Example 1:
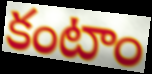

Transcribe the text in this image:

కంటాం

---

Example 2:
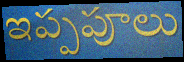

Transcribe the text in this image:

ఇప్పపూలు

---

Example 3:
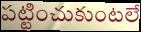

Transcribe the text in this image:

పట్టించుకుంటలే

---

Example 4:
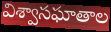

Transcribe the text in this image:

విశ్వాసఘాతాల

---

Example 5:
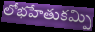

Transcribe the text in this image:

లోభహేతుకమ్పి